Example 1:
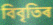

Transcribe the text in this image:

বিবৃতিৰ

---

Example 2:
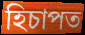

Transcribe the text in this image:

হিচাপত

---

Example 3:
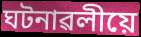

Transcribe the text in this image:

ঘটনাৱলীয়ে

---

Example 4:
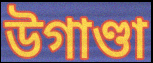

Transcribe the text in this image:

উগাণ্ডা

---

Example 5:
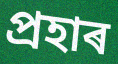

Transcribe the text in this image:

প্ৰহাৰ